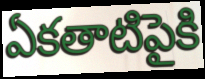
ఏకతాటిపైకి